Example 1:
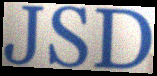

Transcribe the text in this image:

JSD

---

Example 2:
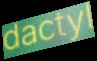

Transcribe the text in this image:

dactyl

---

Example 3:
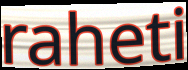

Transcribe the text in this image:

raheti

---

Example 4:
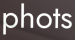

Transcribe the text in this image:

phots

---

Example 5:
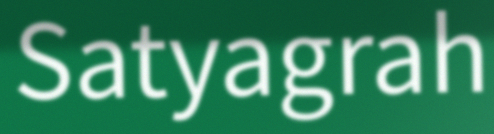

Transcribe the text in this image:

Satyagrah